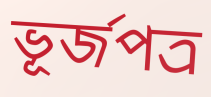
ভূর্জপত্র